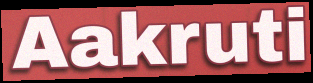
Aakruti